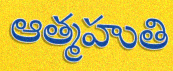
ఆత్మహుతి